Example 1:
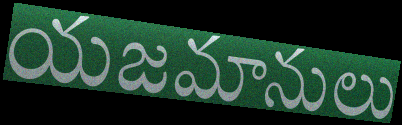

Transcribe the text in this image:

యజమానులు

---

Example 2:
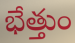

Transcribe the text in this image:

భేత్తుం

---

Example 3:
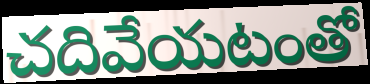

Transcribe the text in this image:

చదివేయటంతో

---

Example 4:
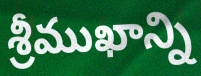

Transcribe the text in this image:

శ్రీముఖాన్ని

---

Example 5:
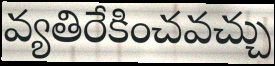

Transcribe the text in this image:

వ్యతిరేకించవచ్చు